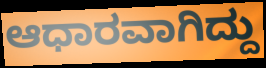
ಆಧಾರವಾಗಿದ್ದು